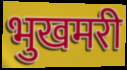
भुखमरी